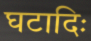
घटादिः